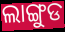
ଲାଙ୍ଗୁଡ